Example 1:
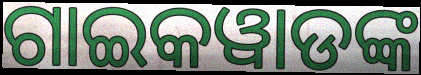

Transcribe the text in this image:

ଗାଇକୱାଡଙ୍କ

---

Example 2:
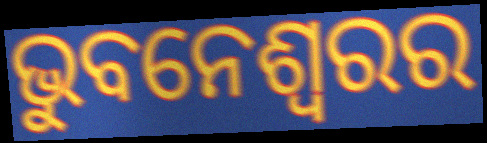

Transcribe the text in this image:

ଭୁବନେଶ୍ଵରର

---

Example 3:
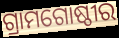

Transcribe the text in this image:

ଗ୍ରାମଗୋଷ୍ଠୀର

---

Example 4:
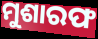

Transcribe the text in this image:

ମୁଶାରଫ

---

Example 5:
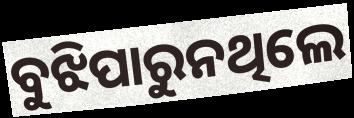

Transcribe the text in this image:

ବୁଝିପାରୁନଥିଲେ